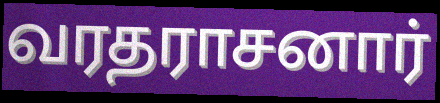
வரதராசனார்